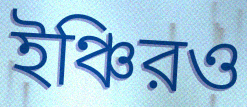
ইঞ্চিরও